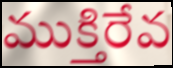
ముక్తిరేవ